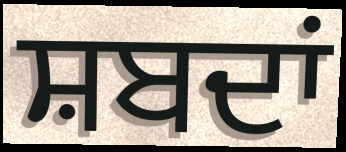
ਸ਼ਬਦਾਂ